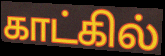
காட்கில்